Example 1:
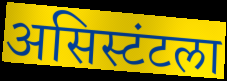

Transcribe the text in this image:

असिस्टंटला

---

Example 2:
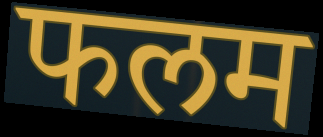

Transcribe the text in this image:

फलम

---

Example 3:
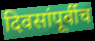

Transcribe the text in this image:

दिवसांपूर्वीच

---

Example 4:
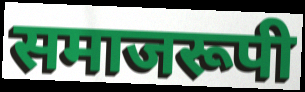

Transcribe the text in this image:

समाजरूपी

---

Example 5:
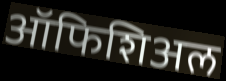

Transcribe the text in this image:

ऑफिशिअल